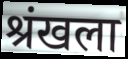
श्रंखला